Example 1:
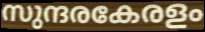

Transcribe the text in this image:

സുന്ദരകേരളം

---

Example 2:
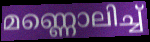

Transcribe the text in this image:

മണ്ണൊലിച്ച്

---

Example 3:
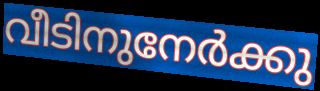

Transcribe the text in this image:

വീടിനുനേർക്കു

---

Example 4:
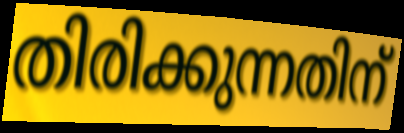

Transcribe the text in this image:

തിരിക്കുന്നതിന്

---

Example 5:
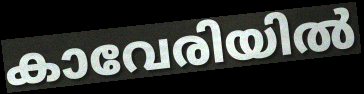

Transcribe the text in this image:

കാവേരിയിൽ